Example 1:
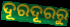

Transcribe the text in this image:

ଦୂରଦୂରରୁ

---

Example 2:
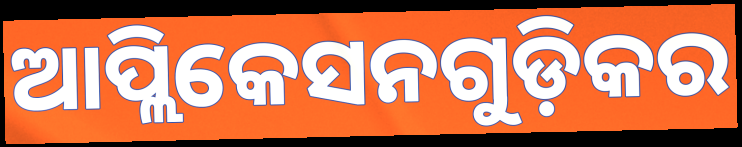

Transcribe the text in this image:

ଆପ୍ଲିକେସନଗୁଡ଼ିକର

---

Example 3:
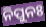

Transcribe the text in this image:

ନିପୁନଃ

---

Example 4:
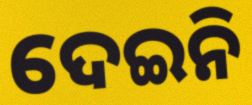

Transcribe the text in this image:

ଦେଇନି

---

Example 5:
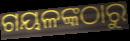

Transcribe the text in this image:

ଗୟଳଙ୍କଠାରୁ